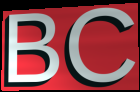
BC